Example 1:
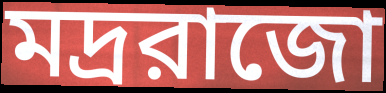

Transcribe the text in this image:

মদ্ররাজো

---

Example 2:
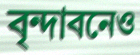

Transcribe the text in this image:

বৃন্দাবনেও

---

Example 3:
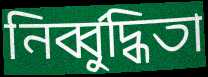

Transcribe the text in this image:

নির্ব্বুদ্ধিতা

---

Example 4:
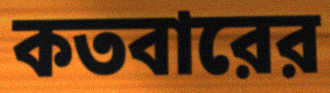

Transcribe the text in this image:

কতবারের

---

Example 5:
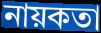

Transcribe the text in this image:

নায়কতা